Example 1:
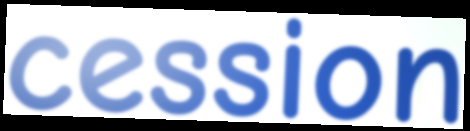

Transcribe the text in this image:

cession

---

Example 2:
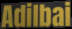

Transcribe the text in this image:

Adilbai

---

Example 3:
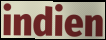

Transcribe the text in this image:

indien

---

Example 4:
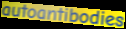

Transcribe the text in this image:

autoantibodies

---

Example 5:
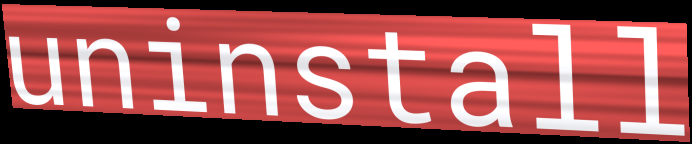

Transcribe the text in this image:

uninstall